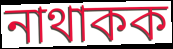
নাথাকক